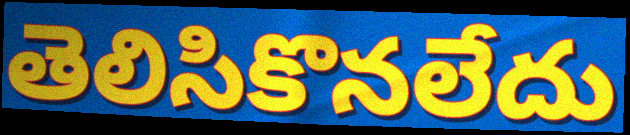
తెలిసికొనలేదు